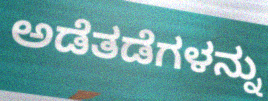
ಅಡೆತಡೆಗಳನ್ನು